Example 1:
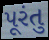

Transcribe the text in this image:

પૂરંતુ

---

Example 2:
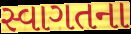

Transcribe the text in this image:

સ્વાગતના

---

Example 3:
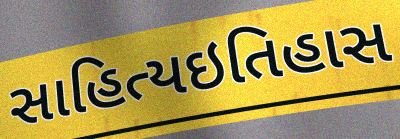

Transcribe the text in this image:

સાહિત્યઇતિહાસ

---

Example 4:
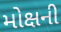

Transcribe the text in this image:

મોક્ષની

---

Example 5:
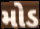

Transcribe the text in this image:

મોડ